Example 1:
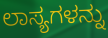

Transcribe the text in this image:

ಲಾಸ್ಯಗಳನ್ನು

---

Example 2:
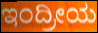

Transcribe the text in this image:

ಇಂದ್ರೀಯ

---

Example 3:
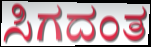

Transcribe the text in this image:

ಸಿಗದಂತ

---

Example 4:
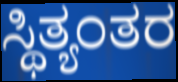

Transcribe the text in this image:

ಸ್ಥಿತ್ಯಂತರ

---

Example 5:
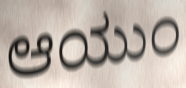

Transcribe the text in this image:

ಆಯುಂ